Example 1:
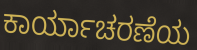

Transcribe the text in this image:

ಕಾರ್ಯಾಚರಣೆಯ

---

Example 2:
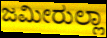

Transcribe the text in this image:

ಜಮೀರುಲ್ಲಾ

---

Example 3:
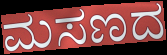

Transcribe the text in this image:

ಮಸಣದ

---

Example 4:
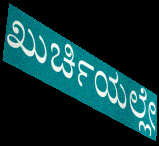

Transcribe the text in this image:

ಖುರ್ಚಿಯಲ್ಲೇ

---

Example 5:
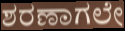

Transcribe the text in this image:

ಶರಣಾಗಲೇ